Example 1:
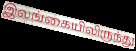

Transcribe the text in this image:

இலங்கையிலிருந்து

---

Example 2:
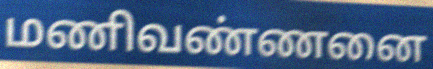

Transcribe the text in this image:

மணிவண்ணனை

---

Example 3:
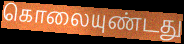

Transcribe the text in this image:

கொலையுண்டது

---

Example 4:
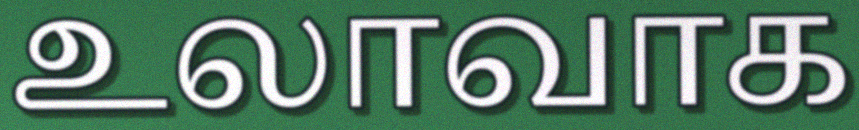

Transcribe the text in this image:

உலாவாக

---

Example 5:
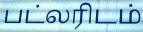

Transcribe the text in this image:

பட்லரிடம்